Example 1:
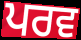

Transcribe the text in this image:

ਪਰਵ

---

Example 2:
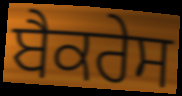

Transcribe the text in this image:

ਬੈਕਰੇਸ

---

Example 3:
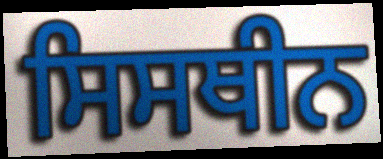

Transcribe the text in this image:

ਸਿਸਥੀਨ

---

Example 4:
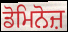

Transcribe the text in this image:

ਡੋਮਿਨੋਜ਼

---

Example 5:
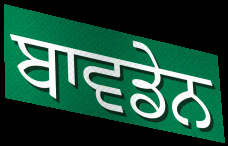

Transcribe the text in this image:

ਬਾਵਡੇਨ